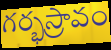
గర్భస్రావం